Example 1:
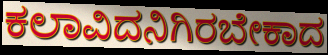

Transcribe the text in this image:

ಕಲಾವಿದನಿಗಿರಬೇಕಾದ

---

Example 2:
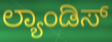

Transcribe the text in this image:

ಲ್ಯಾಂಡಿಸ್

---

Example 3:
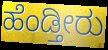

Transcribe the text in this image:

ಹೆಂಡ್ತೀರು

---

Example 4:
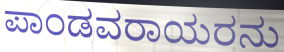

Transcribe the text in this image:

ಪಾಂಡವರಾಯರನು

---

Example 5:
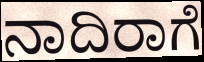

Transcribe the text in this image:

ನಾದಿರಾಗೆ